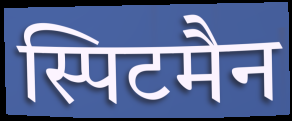
स्पिटमैन